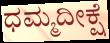
ಧಮ್ಮದೀಕ್ಷೆ